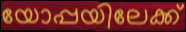
യോപ്പയിലേക്ക്